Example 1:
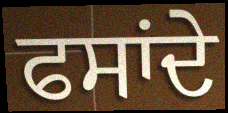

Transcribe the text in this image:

ਫਸਾਂਦੇ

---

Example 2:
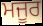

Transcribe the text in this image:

ਮਜੂਰ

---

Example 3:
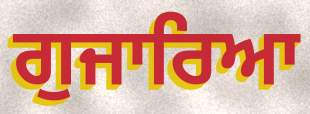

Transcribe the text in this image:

ਗੁਜਾਰਿਆ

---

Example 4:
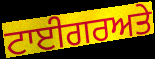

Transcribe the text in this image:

ਟਾਈਗਰਅਤੇ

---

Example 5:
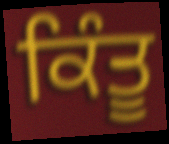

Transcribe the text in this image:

ਕਿੰਤੂ